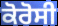
ਕੋਰੋਸੀ